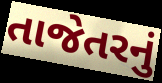
તાજેતરનું